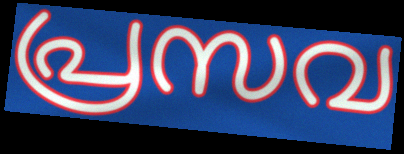
പ്രസവ